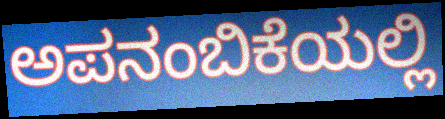
ಅಪನಂಬಿಕೆಯಲ್ಲಿ